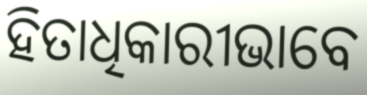
ହିତାଧିକାରୀଭାବେ